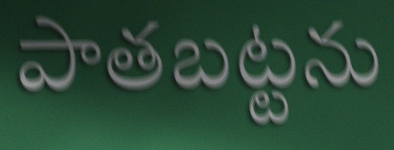
పాతబట్టను